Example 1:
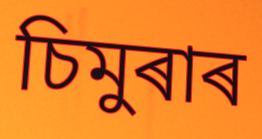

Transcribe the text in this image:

চিমুৰাৰ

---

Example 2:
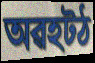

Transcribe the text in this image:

অৱহটঠ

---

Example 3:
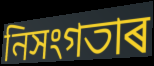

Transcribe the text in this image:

নিসংগতাৰ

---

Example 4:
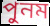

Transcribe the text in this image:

পুনম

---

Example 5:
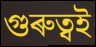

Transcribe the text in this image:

গুৰুত্বই